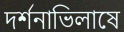
দর্শনাভিলাষে